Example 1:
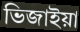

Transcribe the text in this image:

ভিজাইয়া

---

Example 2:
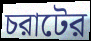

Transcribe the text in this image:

চরাটের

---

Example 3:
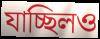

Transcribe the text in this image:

যাচ্ছিলও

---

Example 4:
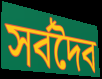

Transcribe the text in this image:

সর্বদৈব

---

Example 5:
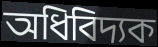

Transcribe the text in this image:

অধিবিদ্যক